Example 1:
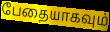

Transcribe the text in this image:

பேதையாகவும்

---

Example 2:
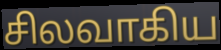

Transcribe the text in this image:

சிலவாகிய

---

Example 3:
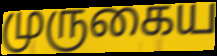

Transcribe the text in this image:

முருகைய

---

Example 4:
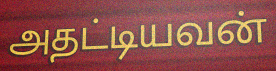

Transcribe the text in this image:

அதட்டியவன்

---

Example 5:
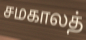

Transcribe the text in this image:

சமகாலத்